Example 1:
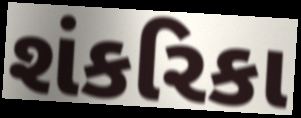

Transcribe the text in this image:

શંકરિકા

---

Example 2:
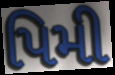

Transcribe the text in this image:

પિમી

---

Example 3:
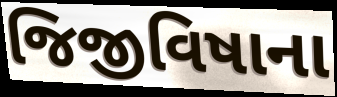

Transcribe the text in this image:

જિજીવિષાના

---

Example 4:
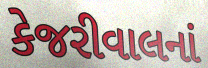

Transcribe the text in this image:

કેજરીવાલનાં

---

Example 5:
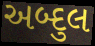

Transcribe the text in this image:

અબ્દુલ